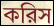
করিস